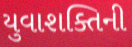
યુવાશક્તિની